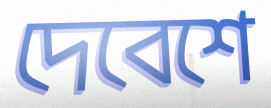
দেবেশে